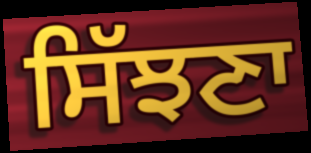
ਸਿੱਝਣਾ